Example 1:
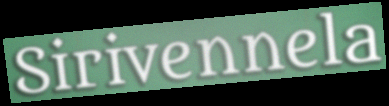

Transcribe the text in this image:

Sirivennela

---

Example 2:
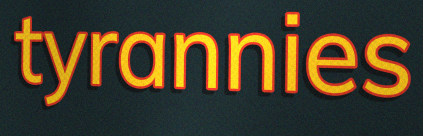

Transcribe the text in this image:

tyrannies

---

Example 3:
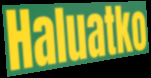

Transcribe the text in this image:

Haluatko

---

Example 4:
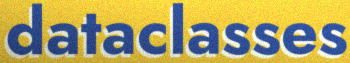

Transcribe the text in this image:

dataclasses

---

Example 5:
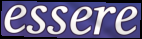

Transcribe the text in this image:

essere